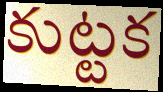
కుట్టక